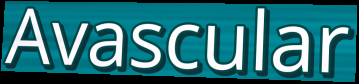
Avascular